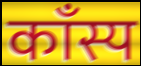
काँस्य